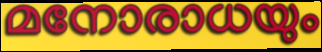
മനോരാധയും